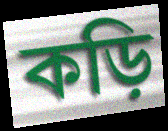
কড়ি